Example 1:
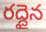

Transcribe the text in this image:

రద్దైన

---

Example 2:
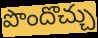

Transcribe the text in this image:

పొందొచ్చు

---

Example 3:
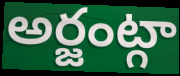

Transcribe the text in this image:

అర్జంట్గా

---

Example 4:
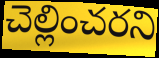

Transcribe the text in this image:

చెల్లించరని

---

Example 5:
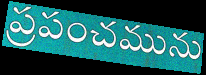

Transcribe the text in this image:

ప్రపంచమును